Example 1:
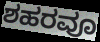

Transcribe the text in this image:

ಶಹರವೂ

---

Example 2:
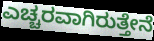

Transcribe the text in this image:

ಎಚ್ಚರವಾಗಿರುತ್ತೇನೆ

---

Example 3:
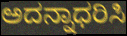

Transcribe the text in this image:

ಅದನ್ನಾಧರಿಸಿ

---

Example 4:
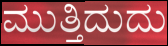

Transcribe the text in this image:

ಮುತ್ತಿದುದು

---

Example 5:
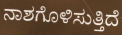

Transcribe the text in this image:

ನಾಶಗೊಳಿಸುತ್ತಿದೆ